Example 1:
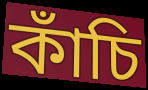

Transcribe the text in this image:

কাঁচি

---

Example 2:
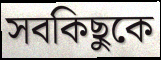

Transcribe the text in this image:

সবকিছুকে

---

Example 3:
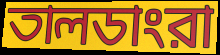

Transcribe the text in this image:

তালডাংরা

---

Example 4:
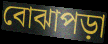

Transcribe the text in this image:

বোঝাপড়া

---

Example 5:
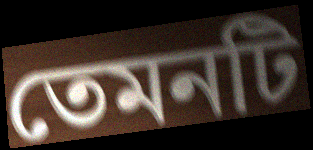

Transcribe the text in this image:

তেমনটি